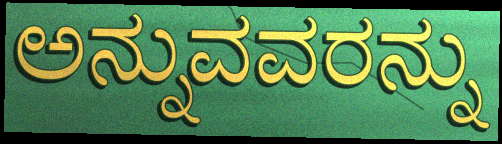
ಅನ್ನುವವರನ್ನು